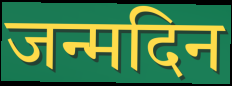
जन्‍मदिन